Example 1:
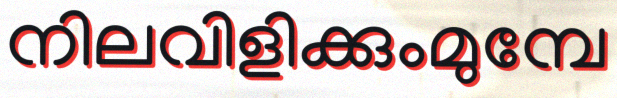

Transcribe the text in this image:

നിലവിളിക്കുംമുമ്പേ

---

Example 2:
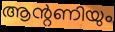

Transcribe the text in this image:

ആന്റണിയും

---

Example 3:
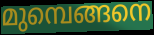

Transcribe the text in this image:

മുമ്പെങ്ങനെ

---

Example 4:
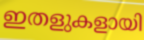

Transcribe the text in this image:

ഇതളുകളായി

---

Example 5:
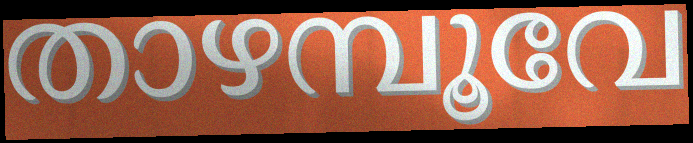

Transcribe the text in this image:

താഴമ്പൂവേ